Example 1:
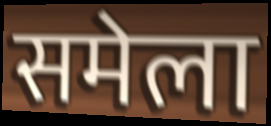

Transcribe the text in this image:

समेला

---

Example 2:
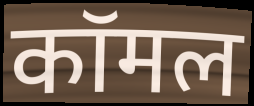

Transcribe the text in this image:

कॉमल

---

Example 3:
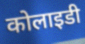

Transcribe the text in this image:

कोलाइडी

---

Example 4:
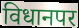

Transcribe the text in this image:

विधानपर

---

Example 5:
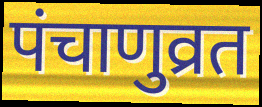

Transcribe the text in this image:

पंचाणुव्रत